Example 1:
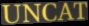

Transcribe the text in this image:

UNCAT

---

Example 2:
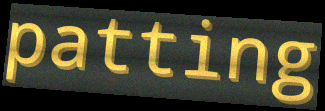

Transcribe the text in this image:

patting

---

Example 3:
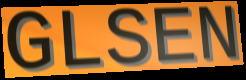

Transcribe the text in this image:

GLSEN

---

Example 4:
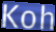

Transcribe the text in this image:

Koh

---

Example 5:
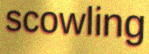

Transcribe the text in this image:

scowling